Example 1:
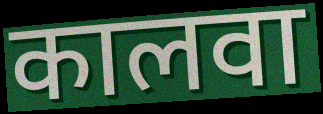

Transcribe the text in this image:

कालवा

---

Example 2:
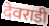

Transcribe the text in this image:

देवराडी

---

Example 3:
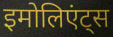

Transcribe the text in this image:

इमोलिएंट्स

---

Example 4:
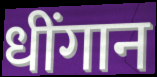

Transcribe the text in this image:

धींगान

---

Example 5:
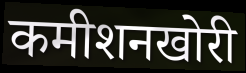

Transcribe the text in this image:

कमीशनखोरी